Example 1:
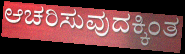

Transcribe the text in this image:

ಆಚರಿಸುವುದಕ್ಕಿಂತ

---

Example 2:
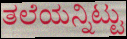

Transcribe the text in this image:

ತಲೆಯನ್ನಿಟ್ಟು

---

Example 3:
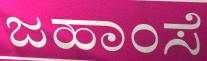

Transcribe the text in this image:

ಜಹಾಂಸೆ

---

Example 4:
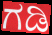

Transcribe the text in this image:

ಗಡಿ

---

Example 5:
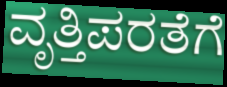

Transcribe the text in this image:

ವೃತ್ತಿಪರತೆಗೆ